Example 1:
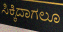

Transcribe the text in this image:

ಸಿಕ್ಕಿದಾಗಲೂ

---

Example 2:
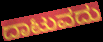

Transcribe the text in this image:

ದಾಟುವದು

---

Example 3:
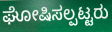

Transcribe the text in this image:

ಘೋಷಿಸಲ್ಪಟ್ಟರು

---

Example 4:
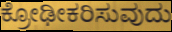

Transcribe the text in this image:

ಕ್ರೋಢೀಕರಿಸುವುದು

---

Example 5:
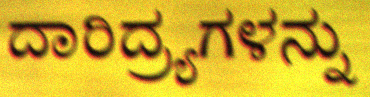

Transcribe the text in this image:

ದಾರಿದ್ರ್ಯಗಳನ್ನು